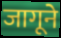
जागूने